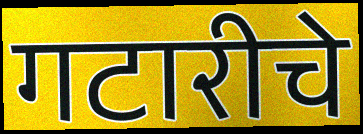
गटारीचे